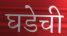
घडेची